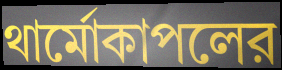
থার্মোকাপলের